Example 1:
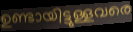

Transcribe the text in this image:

ഉണ്ടായിട്ടുള്ളവരെ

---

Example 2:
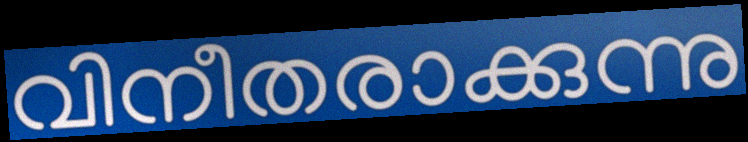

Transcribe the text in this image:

വിനീതരാക്കുന്നു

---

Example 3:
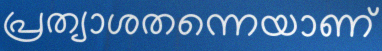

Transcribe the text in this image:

പ്രത്യാശതന്നെയാണ്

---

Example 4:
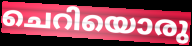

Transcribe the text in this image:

ചെറിയൊരു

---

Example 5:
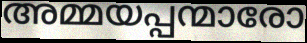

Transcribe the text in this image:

അമ്മയപ്പന്മാരോ